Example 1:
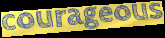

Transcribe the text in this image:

courageous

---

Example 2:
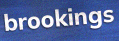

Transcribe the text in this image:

brookings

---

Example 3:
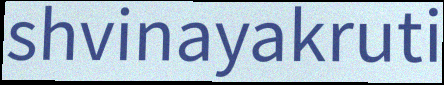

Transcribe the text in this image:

shvinayakruti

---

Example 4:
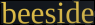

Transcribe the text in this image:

beeside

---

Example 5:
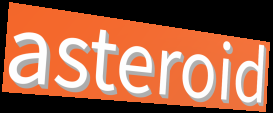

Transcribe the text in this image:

asteroid